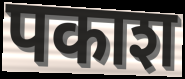
पकाश